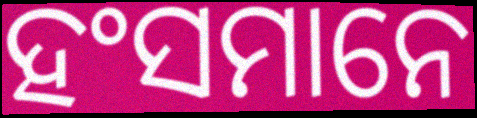
ହଂସମାନେ